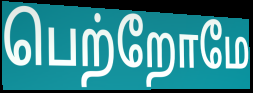
பெற்றோமே